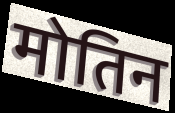
मोतिन